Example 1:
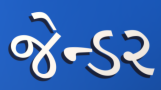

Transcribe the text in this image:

જેન્ડર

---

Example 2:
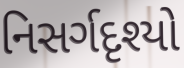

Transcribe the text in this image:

નિસર્ગદૃશ્યો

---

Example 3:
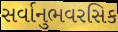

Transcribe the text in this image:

સર્વાનુભવરસિક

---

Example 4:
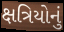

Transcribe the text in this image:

ક્ષત્રિયોનું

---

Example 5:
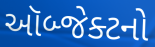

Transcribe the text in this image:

ઑબ્જેક્ટનો